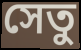
সেতু